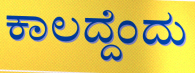
ಕಾಲದ್ದೆಂದು